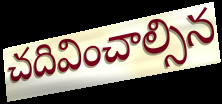
చదివించాల్సిన